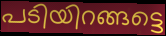
പടിയിറങ്ങട്ടെ